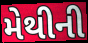
મેથીની